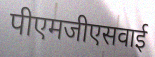
पीएमजीएसवाई